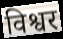
विश्वर